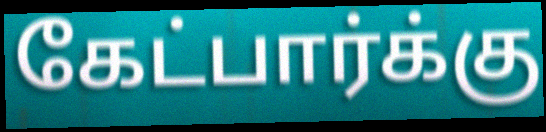
கேட்பார்க்கு